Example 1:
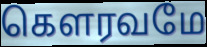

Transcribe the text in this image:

கௌரவமே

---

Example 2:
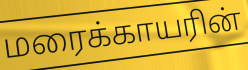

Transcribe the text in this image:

மரைக்காயரின்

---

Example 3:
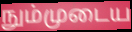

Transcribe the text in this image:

நும்முடைய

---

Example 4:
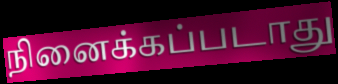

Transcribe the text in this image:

நினைக்கப்படாது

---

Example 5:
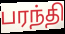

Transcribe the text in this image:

பரந்தி